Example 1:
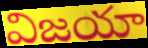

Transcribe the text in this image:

విజయా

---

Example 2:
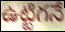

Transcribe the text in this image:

ఉట్టిగనే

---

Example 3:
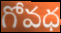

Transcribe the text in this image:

గోవధ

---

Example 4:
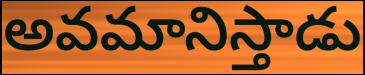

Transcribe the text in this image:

అవమానిస్తాడు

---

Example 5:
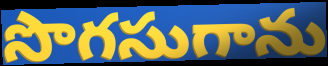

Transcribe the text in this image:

సొగసుగాను